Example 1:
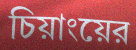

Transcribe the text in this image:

চিয়াংয়ের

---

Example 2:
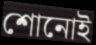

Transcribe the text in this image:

শোনোই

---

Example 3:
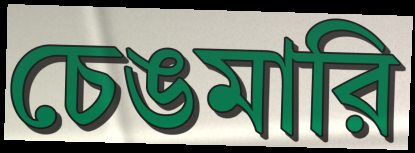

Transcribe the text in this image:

চেঙমারি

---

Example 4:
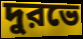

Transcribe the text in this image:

দুরভে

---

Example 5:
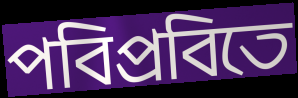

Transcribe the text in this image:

পবিপ্রবিতে